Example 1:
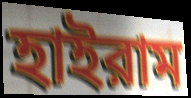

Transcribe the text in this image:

হাইরাম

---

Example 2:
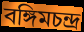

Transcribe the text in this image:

বঙ্গিমচন্দ্র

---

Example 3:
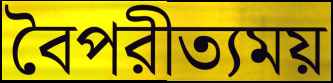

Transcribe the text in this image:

বৈপরীত্যময়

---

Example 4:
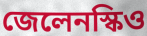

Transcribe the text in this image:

জেলেনস্কিও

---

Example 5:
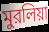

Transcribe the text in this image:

মুরলিয়া